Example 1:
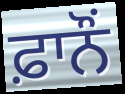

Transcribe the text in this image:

ਫ਼ਾਨੌਂ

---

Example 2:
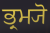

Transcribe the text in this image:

ਭ੍ਰਮ੍ਯੋ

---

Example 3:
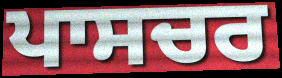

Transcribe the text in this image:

ਪਾਸਚਰ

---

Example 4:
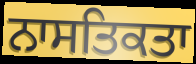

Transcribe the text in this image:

ਨਾਸਤਿਕਤਾ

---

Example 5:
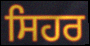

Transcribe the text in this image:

ਸਿਹਰ